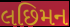
લછિમન